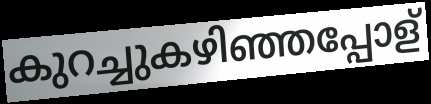
കുറച്ചുകഴിഞ്ഞപ്പോള്